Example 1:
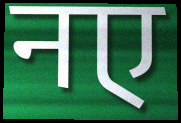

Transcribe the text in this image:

नए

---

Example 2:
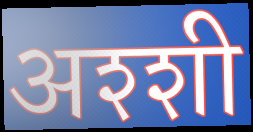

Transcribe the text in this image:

अश्शी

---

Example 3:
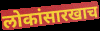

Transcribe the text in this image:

लोकांसारखाच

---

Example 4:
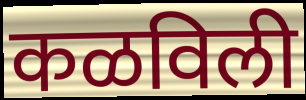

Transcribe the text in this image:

कळविली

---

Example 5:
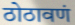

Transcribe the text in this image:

ठोठावणं